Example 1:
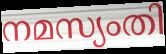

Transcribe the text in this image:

നമസ്യംതി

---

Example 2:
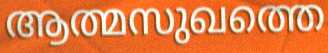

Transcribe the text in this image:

ആത്മസുഖത്തെ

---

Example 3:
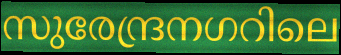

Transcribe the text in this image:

സുരേന്ദ്രനഗറിലെ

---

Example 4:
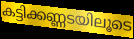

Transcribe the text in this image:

കട്ടിക്കണ്ണടയിലൂടെ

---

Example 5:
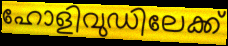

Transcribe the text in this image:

ഹോളിവുഡിലേക്ക്